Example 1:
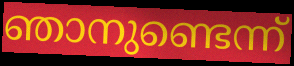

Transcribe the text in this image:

ഞാനുണ്ടെന്ന്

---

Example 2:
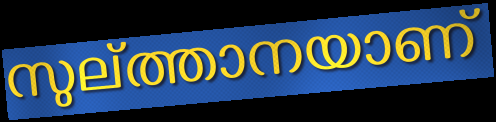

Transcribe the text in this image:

സുല്ത്താനയാണ്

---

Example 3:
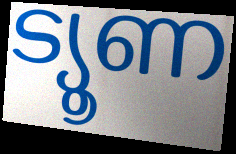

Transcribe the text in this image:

ട്യൂണ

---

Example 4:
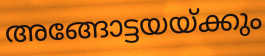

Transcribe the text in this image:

അങ്ങോട്ടയയ്ക്കും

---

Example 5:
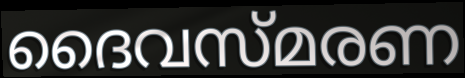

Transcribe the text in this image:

ദൈവസ്മരണ